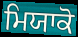
ਮਿਯਾਕੋ